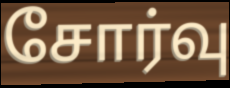
சோர்வு